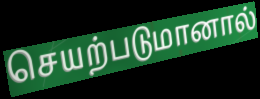
செயற்படுமானால்